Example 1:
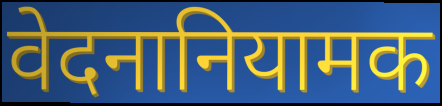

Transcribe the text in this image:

वेदनानियामक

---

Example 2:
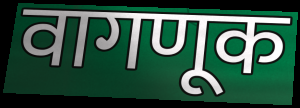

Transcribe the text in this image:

वागणूक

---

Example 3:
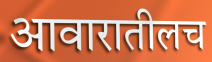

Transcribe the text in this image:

आवारातीलच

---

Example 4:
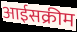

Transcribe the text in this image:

आईसक्रीम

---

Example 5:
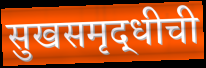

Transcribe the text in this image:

सुखसमृद्धीची